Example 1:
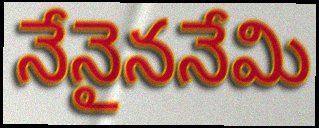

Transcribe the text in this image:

నేనైననేమి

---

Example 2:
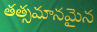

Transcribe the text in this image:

తత్సమానమైన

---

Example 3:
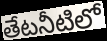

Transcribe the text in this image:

తేటనీటిలో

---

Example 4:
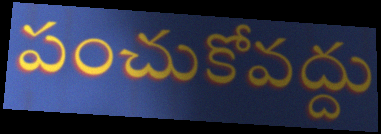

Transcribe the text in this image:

పంచుకోవద్దు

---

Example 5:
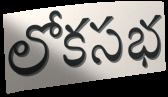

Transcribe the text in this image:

లోకసభ